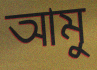
আমু